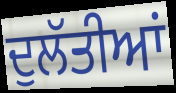
ਦੁਲੱਤੀਆਂ